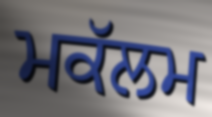
ਮਕੱਲਮ